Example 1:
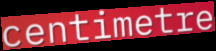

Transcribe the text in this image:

centimetre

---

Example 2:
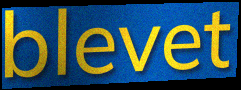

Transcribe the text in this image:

blevet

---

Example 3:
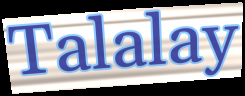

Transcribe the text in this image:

Talalay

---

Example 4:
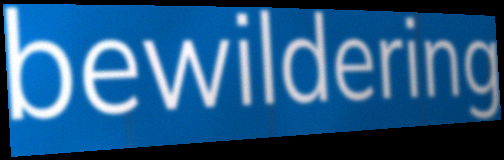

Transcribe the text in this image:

bewildering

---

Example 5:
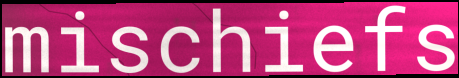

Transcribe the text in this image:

mischiefs